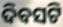
ଦିବସଟି